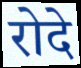
रोदे